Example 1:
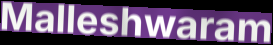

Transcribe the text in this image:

Malleshwaram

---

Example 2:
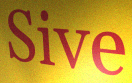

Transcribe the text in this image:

Sive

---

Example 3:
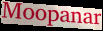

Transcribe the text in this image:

Moopanar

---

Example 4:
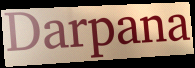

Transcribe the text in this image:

Darpana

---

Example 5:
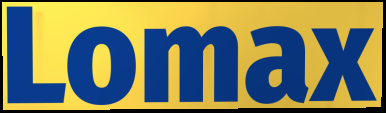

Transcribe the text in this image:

Lomax